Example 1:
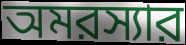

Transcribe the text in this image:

অমরস্যার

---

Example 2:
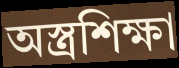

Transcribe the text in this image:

অস্ত্রশিক্ষা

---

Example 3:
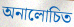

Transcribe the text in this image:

অনালোচিত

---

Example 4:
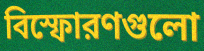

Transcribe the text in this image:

বিস্ফোরণগুলো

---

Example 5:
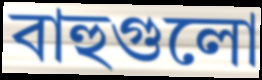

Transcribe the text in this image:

বাহুগুলো